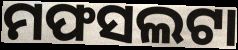
ମଫସଲଟା